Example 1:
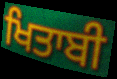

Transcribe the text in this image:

ਖਿਤਾਬੀ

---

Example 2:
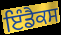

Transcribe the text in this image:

ਇੰਡੈਕਸ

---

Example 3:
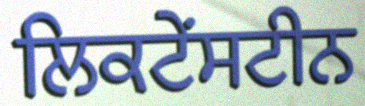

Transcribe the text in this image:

ਲਿਕਟੇਂਸਟੀਨ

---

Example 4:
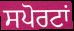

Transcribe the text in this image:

ਸਪੋਰਟਾਂ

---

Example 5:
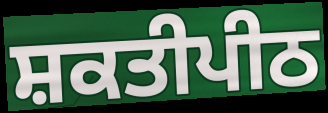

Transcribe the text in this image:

ਸ਼ਕਤੀਪੀਠ